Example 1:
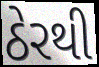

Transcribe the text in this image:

ઠેરથી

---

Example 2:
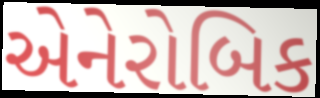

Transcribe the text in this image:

એનેરોબિક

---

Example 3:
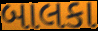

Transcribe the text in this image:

બાલકા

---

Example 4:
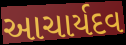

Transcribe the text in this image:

આચાર્યદવ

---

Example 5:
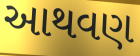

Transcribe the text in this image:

આથવણ